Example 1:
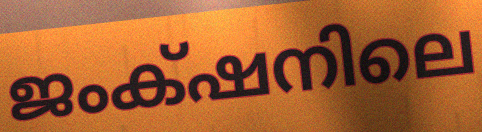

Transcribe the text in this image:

ജംക്‌ഷനിലെ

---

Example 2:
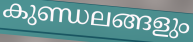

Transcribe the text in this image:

കുണ്ഡലങ്ങളും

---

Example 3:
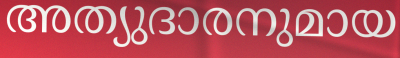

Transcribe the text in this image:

അത്യുദാരനുമായ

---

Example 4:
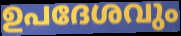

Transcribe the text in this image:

ഉപദേശവും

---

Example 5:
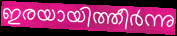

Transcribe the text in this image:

ഇരയായിത്തീർന്നു